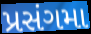
પ્રસંગમા